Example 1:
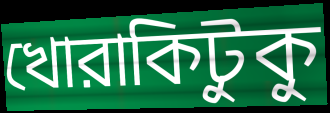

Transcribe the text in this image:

খোরাকিটুকু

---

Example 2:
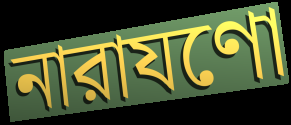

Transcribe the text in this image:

নারাযণো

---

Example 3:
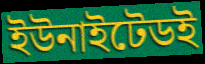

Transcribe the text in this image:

ইউনাইটেডই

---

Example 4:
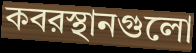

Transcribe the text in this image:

কবরস্থানগুলো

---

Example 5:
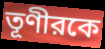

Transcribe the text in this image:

তূণীরকে